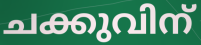
ചക്കുവിന്